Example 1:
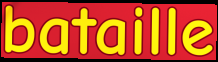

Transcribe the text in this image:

bataille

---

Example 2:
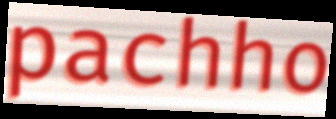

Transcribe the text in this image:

pachho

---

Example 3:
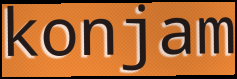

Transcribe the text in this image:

konjam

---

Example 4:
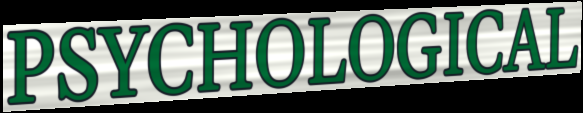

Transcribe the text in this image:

PSYCHOLOGICAL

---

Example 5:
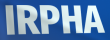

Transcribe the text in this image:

IRPHA